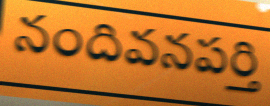
నందివనపర్తి